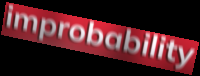
improbability